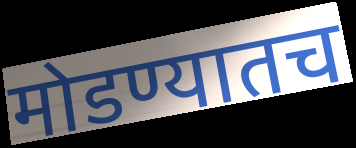
मोडण्यातच